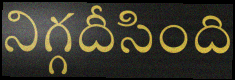
నిగ్గదీసింది